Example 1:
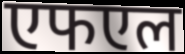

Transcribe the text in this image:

एफएल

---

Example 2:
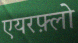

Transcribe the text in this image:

एयरफ़्लो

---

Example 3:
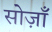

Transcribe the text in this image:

सोज़ाँ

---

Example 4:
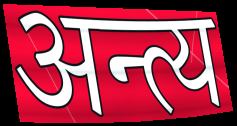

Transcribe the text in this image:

अन्त्य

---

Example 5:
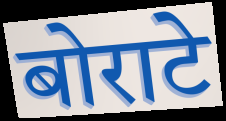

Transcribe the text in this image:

बोराटे